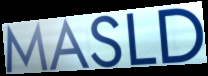
MASLD